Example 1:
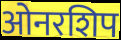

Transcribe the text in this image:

ओनरशिप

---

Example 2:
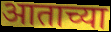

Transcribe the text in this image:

आताच्या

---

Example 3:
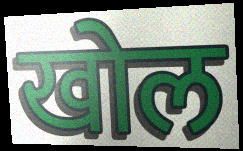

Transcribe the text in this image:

खोल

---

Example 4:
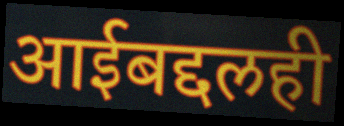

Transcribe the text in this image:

आईबद्दलही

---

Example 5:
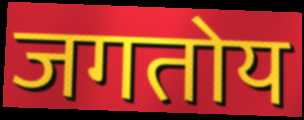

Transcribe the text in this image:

जगतोय